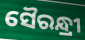
ସୈରନ୍ଧ୍ରୀ